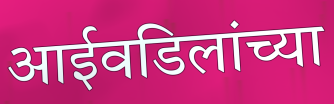
आईवडिलांच्या